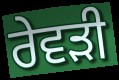
ਰੇਵੜੀ